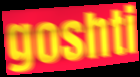
goshti